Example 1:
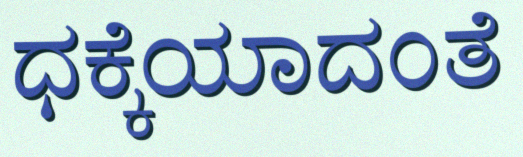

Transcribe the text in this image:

ಧಕ್ಕೆಯಾದಂತೆ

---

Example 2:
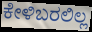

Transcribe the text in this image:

ಕೇಳಿಬರಲಿಲ್ಲ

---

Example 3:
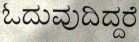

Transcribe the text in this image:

ಓದುವುದಿದ್ದರೆ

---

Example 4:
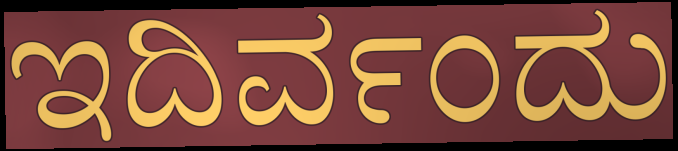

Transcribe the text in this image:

ಇದಿರ್ವಂದು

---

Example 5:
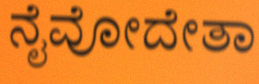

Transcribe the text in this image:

ನೈವೋದೇತಾ